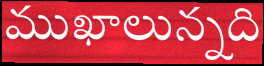
ముఖాలున్నది